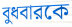
বুধবারকে